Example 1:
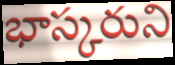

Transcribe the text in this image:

భాస్కరుని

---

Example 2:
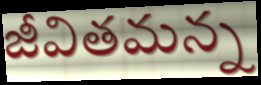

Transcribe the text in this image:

జీవితమన్న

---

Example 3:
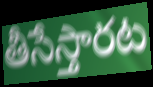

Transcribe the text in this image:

తీసేస్తారట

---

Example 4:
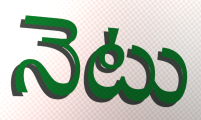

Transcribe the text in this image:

నెటు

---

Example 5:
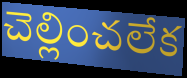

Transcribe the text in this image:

చెల్లించలేక